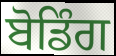
ਬੋਡਿੰਗ